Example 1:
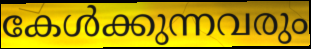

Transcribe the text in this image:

കേൾക്കുന്നവരും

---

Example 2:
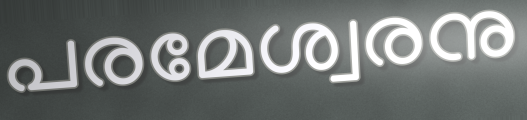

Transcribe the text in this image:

പരമേശ്വരനു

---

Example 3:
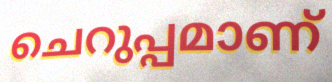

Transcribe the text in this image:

ചെറുപ്പമാണ്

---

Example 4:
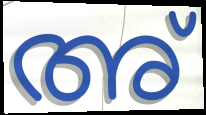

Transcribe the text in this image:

അ്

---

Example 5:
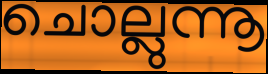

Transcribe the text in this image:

ചൊല്ലുന്നൂ